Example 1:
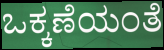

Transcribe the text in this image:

ಒಕ್ಕಣೆಯಂತೆ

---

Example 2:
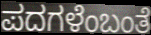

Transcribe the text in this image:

ಪದಗಳೆಂಬಂತೆ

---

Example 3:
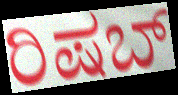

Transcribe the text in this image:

ರಿಷಬ್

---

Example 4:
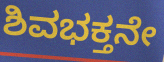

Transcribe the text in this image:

ಶಿವಭಕ್ತನೇ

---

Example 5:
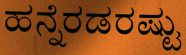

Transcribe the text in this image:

ಹನ್ನೆರಡರಷ್ಟು